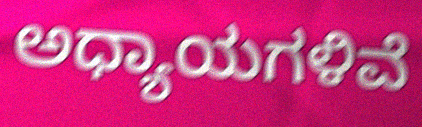
ಅಧ್ಯಾಯಗಳಿವೆ